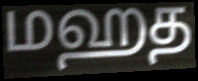
மஹத